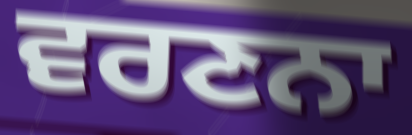
ਵਰਣਨਾ